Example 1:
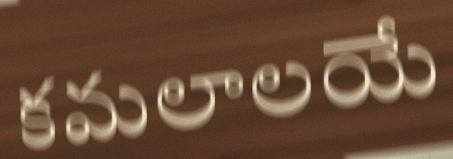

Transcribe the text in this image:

కమలాలయే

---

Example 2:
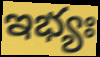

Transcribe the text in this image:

ఇభ్యః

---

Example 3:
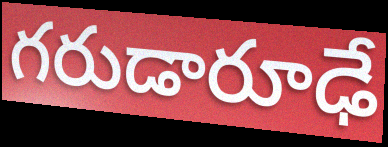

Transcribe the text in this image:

గరుడారూఢే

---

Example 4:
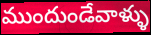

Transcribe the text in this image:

ముందుండేవాళ్ళు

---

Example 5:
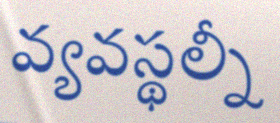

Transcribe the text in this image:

వ్యవస్థల్నీ